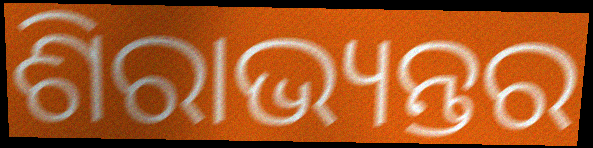
ଶିରାଭ୍ୟନ୍ତର